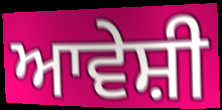
ਆਵੇਸ਼ੀ